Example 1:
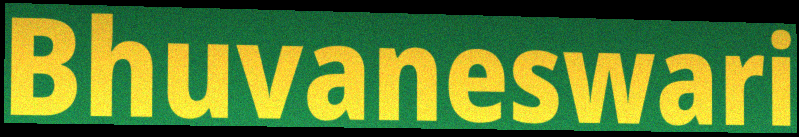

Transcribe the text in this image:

Bhuvaneswari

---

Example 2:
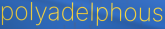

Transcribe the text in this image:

polyadelphous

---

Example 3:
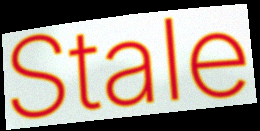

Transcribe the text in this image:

Stale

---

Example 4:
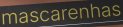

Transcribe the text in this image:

mascarenhas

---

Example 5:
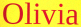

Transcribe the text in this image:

Olivia